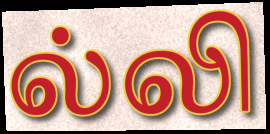
ல்லி